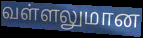
வள்ளலுமான